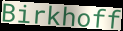
Birkhoff